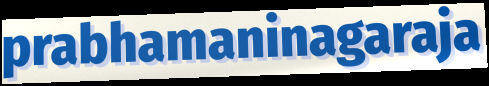
prabhamaninagaraja